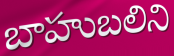
బాహుబలిని